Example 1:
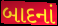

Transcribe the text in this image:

બાદનાં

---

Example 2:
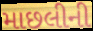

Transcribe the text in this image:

માછલીની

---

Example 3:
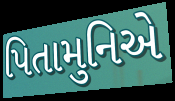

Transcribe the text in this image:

પિતામુનિએ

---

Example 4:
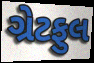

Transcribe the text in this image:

ગ્રેટફુલ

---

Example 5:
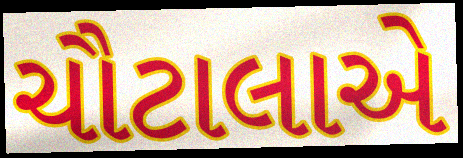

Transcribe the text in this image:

ચૌટાલાએ